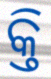
କ୍ତି